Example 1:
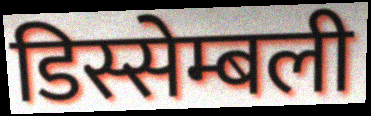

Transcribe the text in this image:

डिस्सेम्बली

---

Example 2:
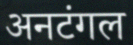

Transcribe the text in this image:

अनटंगल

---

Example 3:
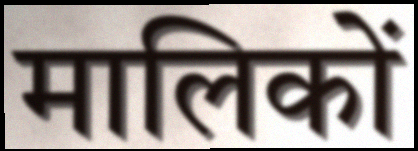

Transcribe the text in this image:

मालिकों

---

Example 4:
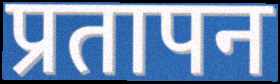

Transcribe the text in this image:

प्रतापन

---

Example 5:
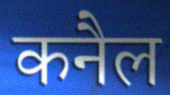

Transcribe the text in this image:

कनैल